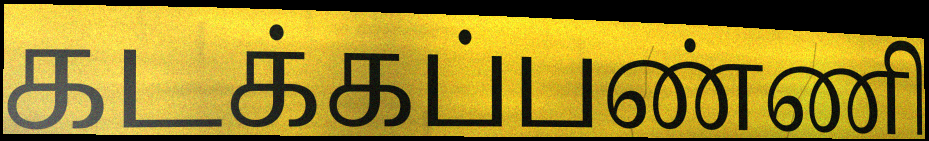
கடக்கப்பண்ணி